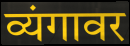
व्यंगावर